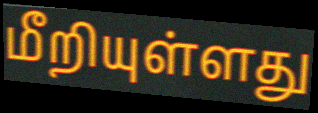
மீறியுள்ளது